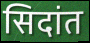
सिदांत